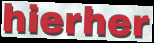
hierher